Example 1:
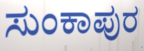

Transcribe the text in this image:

ಸುಂಕಾಪುರ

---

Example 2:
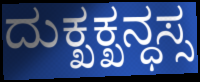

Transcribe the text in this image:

ದುಕ್ಖಕ್ಖನ್ಧಸ್ಸ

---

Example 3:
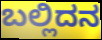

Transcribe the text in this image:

ಬಲ್ಲಿದನ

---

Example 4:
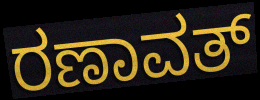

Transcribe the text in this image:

ರಣಾವತ್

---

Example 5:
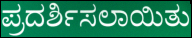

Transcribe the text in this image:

ಪ್ರದರ್ಶಿಸಲಾಯಿತು